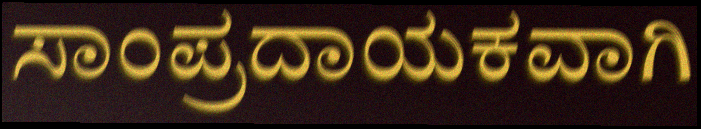
ಸಾಂಪ್ರದಾಯಕವಾಗಿ